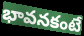
భావనకంటే